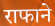
राफाने